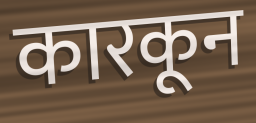
कारकून